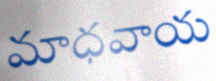
మాధవాయ